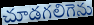
చూడగలిగెను